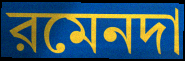
রমেনদা